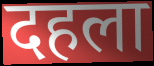
दहला